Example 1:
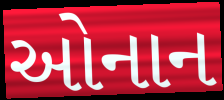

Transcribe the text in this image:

ઓનાન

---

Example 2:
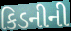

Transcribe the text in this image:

કિડનીની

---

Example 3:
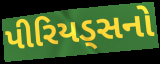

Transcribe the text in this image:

પીરિયડ્સનો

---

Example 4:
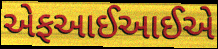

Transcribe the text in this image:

એફઆઈઆઈએ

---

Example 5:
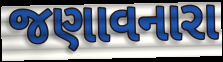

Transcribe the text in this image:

જણાવનારા